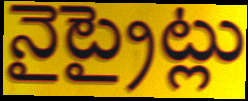
నైట్రైట్లు